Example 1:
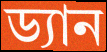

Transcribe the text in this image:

ড্যান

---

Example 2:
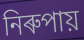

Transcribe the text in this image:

নিৰুপায়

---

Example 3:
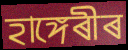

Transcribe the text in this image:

হাঙ্গেৰীৰ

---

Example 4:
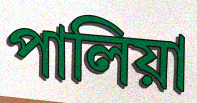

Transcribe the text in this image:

পালিয়া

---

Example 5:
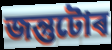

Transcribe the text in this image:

জন্তুটোৰ